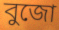
বুজো